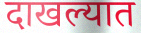
दाखल्यात